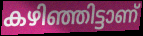
കഴിഞ്ഞിട്ടാണ്